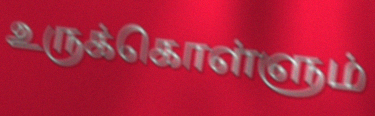
உருக்கொள்ளும்